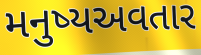
મનુષ્યઅવતાર